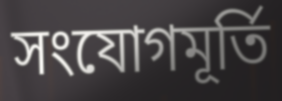
সংযোগমূর্তি